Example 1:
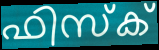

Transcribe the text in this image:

ഫിസ്ക്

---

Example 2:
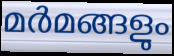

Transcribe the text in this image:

മർമങ്ങളും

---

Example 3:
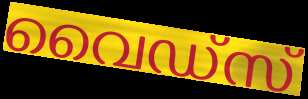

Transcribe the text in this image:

വൈഡ്സ്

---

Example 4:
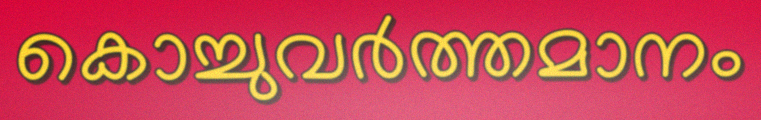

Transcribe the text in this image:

കൊച്ചുവർത്തമാനം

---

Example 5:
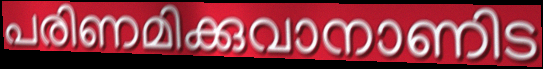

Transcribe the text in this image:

പരിണമിക്കുവാനാണിട